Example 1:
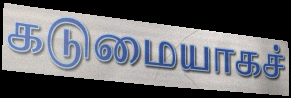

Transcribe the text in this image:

கடுமையாகச்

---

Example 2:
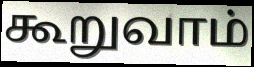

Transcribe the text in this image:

கூறுவாம்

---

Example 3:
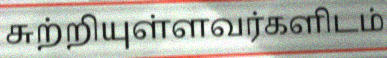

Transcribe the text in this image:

சுற்றியுள்ளவர்களிடம்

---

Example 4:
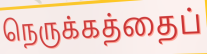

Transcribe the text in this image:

நெருக்கத்தைப்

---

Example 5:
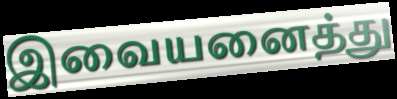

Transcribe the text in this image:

இவையனைத்து